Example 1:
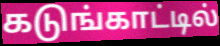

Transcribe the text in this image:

கடுங்காட்டில்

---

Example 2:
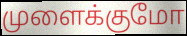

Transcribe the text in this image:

முளைக்குமோ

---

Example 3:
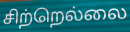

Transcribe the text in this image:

சிற்றெல்லை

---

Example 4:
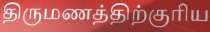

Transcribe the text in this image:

திருமணத்திற்குரிய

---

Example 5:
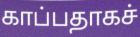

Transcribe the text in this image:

காப்பதாகச்